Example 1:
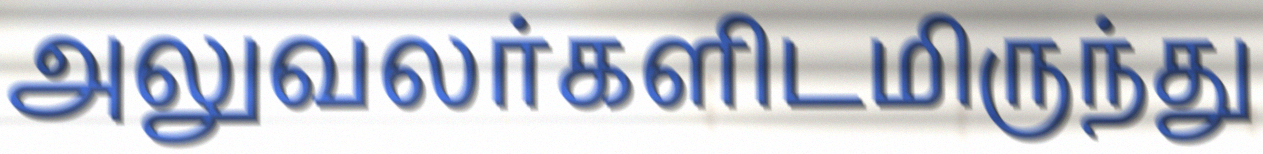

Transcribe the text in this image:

அலுவலர்களிடமிருந்து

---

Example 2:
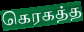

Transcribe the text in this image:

கெரகத்த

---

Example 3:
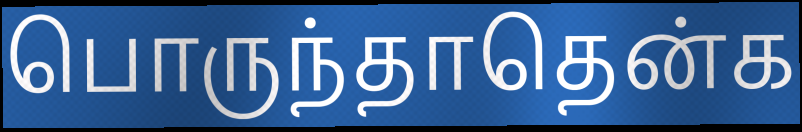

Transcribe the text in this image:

பொருந்தாதென்க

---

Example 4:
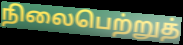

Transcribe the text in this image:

நிலைபெற்றுத்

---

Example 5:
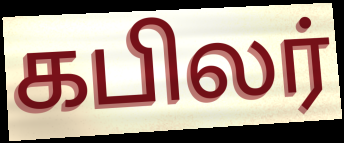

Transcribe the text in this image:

கபிலர்